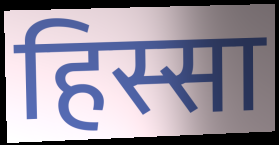
हिस्सा